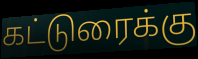
கட்டுரைக்கு